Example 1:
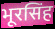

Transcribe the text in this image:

भूरसिंह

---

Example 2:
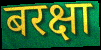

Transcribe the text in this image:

बरक्षा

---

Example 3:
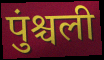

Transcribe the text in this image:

पुंश्चली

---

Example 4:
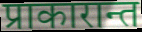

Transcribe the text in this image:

प्राकारान्त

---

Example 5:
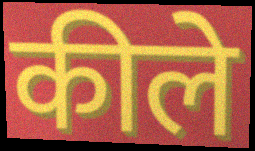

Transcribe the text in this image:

कीले